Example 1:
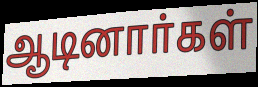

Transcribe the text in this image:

ஆடினார்கள்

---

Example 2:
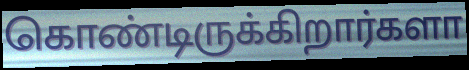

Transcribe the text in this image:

கொண்டிருக்கிறார்களா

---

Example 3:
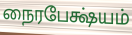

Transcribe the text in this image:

நைரபேக்ஷ்யம்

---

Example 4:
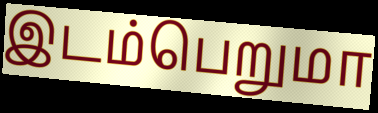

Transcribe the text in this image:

இடம்பெறுமா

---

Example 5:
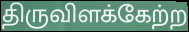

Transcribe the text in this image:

திருவிளக்கேற்ற